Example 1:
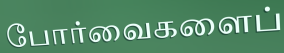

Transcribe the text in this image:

போர்வைகளைப்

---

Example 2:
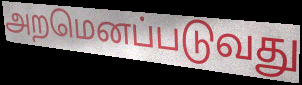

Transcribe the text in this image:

அறமெனப்படுவது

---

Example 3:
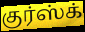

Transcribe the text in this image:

குர்ஸ்க்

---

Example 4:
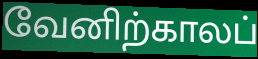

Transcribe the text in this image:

வேனிற்காலப்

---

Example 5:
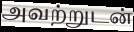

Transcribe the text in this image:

அவற்றுடன்